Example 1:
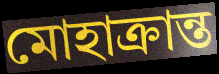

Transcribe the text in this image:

মোহাক্রান্ত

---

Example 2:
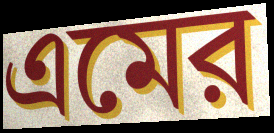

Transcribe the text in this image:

এমের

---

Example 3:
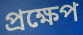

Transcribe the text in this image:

প্রক্ষেপ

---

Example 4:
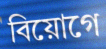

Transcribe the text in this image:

বিয়োগে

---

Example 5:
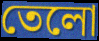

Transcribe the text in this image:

তেলো